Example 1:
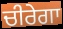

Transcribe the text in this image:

ਚੀਰੇਗਾ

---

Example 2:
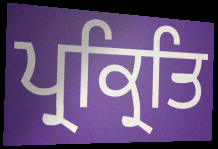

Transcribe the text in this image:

ਪ੍ਰਕ੍ਰਿਤਿ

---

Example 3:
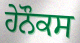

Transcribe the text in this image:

ਹੇਨੌਕਸ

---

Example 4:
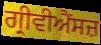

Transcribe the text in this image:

ਗ੍ਰੀਵੀਐਂਸਜ਼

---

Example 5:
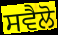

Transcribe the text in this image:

ਸਵੈਲੋ